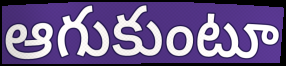
ఆగుకుంటూ